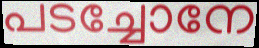
പടച്ചോനേ